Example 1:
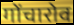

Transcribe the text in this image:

गोंचारोव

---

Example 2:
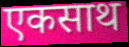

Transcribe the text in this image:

एकसाथ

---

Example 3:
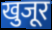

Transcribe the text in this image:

खुजूर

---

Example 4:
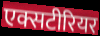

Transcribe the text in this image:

एक्सटीरियर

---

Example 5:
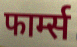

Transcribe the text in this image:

फार्म्स